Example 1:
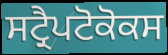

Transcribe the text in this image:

ਸਟ੍ਰੈਪਟੋਕੋਕਸ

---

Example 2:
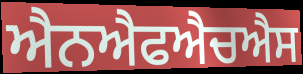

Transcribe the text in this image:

ਐਨਐਫਐਚਐਸ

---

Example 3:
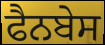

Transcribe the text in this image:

ਫੈਨਬੇਸ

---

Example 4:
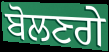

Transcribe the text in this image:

ਬੋਲਣਗੇ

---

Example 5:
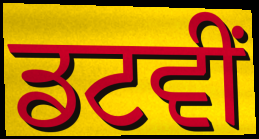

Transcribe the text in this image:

ਡਟਵੀਂ